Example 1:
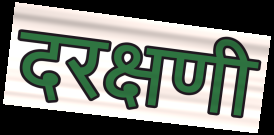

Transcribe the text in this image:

दरक्षणी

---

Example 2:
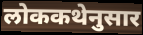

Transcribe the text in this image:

लोककथेनुसार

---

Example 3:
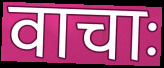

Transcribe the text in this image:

वाचाः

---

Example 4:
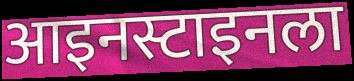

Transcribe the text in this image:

आइनस्टाइनला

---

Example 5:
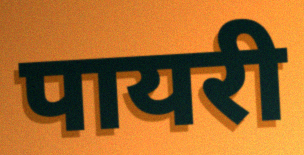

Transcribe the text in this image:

पायरी